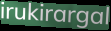
irukirargal